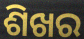
ଶିଖର